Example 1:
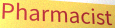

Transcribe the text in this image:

Pharmacist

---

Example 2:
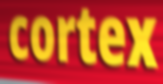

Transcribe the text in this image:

cortex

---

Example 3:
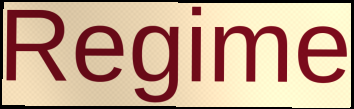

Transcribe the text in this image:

Regime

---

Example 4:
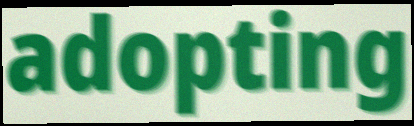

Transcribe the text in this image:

adopting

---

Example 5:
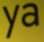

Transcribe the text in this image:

ya